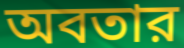
অবতার